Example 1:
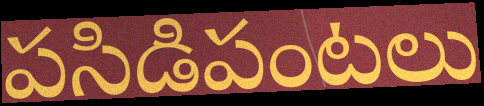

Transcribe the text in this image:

పసిడిపంటలు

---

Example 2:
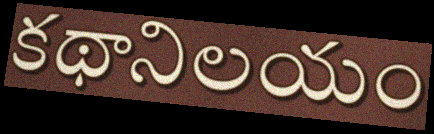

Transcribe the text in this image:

కథానిలయం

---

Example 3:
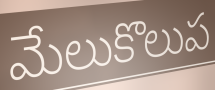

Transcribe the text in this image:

మేలుకొలుప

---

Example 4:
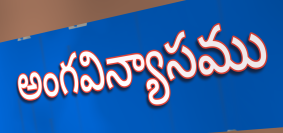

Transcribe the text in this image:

అంగవిన్యాసము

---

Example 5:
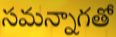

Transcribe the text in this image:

సమన్నాగతో